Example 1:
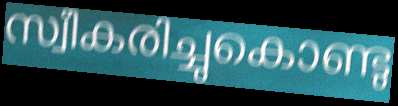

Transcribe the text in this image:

സ്വീകരിച്ചുകൊണ്ടു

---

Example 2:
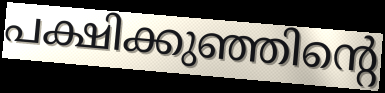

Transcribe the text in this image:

പക്ഷിക്കുഞ്ഞിന്റെ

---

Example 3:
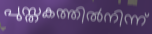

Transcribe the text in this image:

പുസ്തകത്തിൽനിന്ന്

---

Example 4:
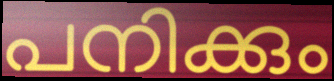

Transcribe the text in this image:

പനിക്കും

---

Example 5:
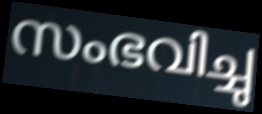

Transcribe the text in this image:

സംഭവിച്ചു